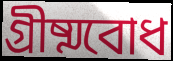
গ্রীষ্মবোধ